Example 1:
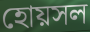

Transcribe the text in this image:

হোয়সল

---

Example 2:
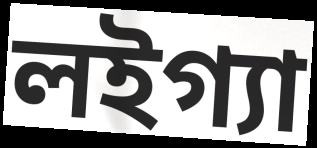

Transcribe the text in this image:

লইগ্যা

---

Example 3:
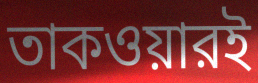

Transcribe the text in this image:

তাকওয়ারই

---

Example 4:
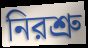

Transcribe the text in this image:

নিরশ্রু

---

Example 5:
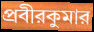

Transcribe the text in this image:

প্রবীরকুমার